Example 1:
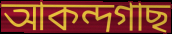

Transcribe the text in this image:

আকন্দগাছ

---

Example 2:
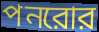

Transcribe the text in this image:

পনরোর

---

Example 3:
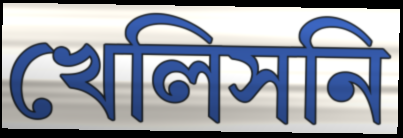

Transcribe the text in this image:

খেলিসনি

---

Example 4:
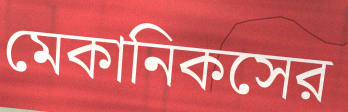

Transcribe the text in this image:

মেকানিকসের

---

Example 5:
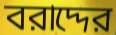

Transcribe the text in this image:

বরাদ্দের